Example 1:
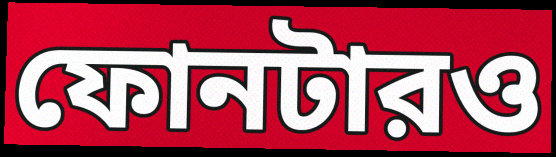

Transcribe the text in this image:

ফোনটারও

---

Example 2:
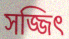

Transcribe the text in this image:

সজ্জিৎ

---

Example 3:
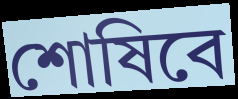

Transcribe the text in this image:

শোষিবে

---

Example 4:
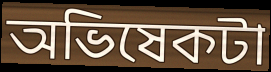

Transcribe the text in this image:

অভিষেকটা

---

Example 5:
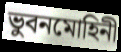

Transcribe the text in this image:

ভুবনমোহিনী